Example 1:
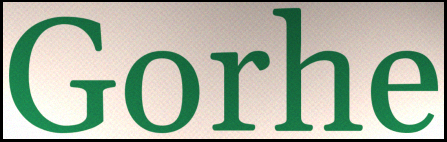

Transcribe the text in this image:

Gorhe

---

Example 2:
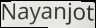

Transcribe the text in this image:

Nayanjot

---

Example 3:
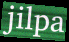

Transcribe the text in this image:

jilpa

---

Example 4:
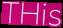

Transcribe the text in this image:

THis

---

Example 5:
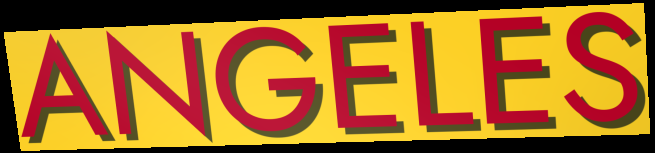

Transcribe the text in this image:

ANGELES